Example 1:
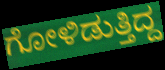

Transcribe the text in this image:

ಗೋಳಿಡುತ್ತಿದ್ದ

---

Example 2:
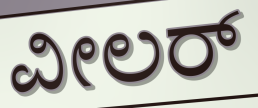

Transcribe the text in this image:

ವೀಲರ್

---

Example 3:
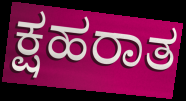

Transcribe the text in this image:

ಕ್ಷಹರಾತ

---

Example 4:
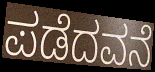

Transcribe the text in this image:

ಪಡೆದವನೆ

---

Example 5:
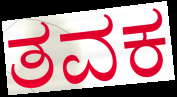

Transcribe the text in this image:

ತವಕ